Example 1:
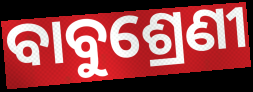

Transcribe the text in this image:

ବାବୁଶ୍ରେଣୀ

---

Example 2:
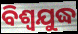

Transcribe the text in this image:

ବିଶ୍ୱଯୁଦ୍ଧ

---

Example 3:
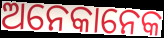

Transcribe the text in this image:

ଅନେକାନେକ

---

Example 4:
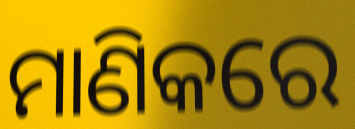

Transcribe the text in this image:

ମାଣିକରେ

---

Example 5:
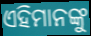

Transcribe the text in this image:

ଏହିମାନଙ୍କୁ